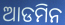
ଆଡମିନ